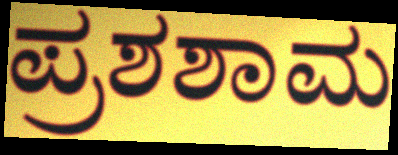
ಪ್ರಶಶಾಮ